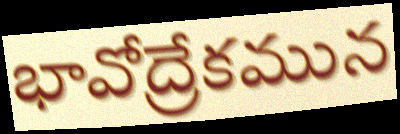
భావోద్రేకమున